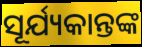
ସୂର୍ଯ୍ୟକାନ୍ତଙ୍କ